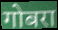
गोबरा